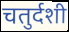
चतुर्दशी